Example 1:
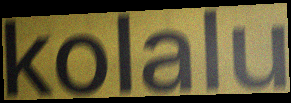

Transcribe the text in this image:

kolalu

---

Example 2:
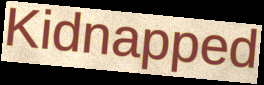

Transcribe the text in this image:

Kidnapped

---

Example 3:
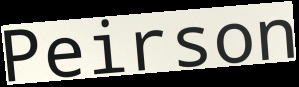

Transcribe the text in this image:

Peirson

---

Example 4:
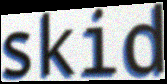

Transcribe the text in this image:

skid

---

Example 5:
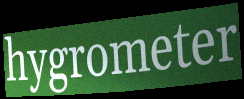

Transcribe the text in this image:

hygrometer